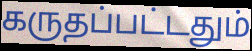
கருதப்பட்டதும்